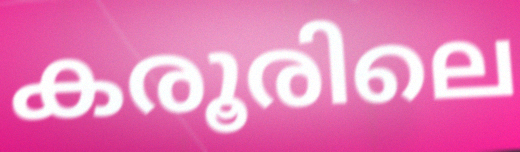
കരൂരിലെ